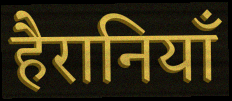
हैरानियाँ